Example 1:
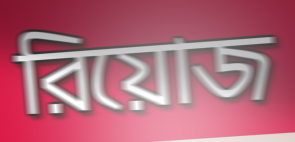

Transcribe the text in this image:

রিয়োজ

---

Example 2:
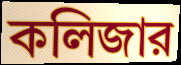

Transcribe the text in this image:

কলিজার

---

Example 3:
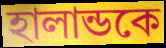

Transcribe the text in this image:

হালান্ডকে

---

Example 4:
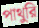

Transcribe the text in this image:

পাথুরি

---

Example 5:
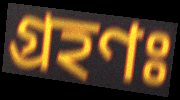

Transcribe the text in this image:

গ্রহণঃ